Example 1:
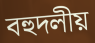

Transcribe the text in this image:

বহুদলীয়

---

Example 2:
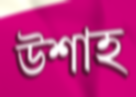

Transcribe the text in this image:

উশাহ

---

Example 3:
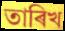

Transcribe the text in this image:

তাৰিখ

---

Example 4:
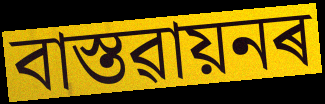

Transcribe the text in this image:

বাস্তৱায়নৰ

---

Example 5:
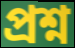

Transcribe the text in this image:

প্ৰশ্ন